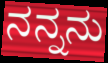
ನನ್ನನು